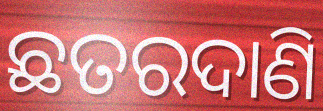
ଛତରଦାଣି